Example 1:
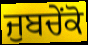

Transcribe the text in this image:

ਜੁਬਚੇਂਕੋ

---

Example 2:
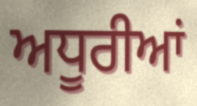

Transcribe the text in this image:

ਅਧੂਰੀਆਂ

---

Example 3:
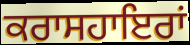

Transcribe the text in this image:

ਕਰਾਸਹਾਇਰਾਂ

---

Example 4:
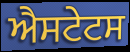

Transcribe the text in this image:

ਐਸਟੇਟਸ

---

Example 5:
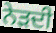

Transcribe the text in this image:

ਨੇੜਦੀ